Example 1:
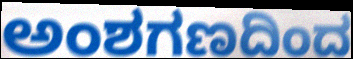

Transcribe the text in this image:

ಅಂಶಗಣದಿಂದ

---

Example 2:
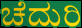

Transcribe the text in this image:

ಚೆದುರಿ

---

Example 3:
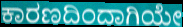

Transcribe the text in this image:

ಕಾರಣದಿಂದಾಗಿಯೇ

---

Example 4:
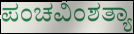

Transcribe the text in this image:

ಪಂಚವಿಂಶತ್ಯಾ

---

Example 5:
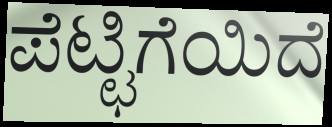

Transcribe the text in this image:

ಪೆಟ್ಟಿಗೆಯಿದೆ